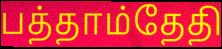
பத்தாம்தேதி